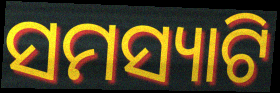
ସମସ୍ୟାଟି